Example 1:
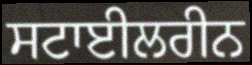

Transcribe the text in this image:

ਸਟਾਈਲਰੀਨ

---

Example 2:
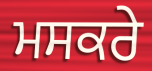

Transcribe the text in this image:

ਮਸਕਰੇ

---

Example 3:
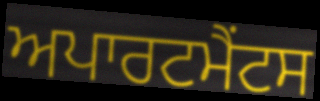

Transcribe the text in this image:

ਅਪਾਰਟਮੈਂਟਸ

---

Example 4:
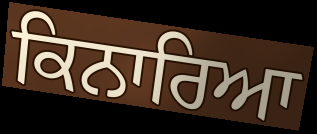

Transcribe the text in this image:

ਕਿਨਾਰਿਆ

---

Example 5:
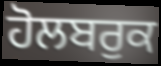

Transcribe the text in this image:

ਹੋਲਬਰੁਕ